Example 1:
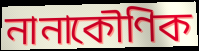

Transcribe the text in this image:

নানাকৌণিক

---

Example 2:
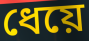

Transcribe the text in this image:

ধেয়ে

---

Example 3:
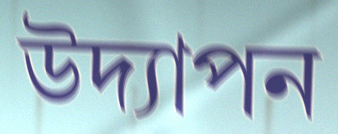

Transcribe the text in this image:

উদ্যাপন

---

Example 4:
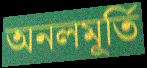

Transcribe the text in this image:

অনলমূর্তি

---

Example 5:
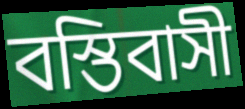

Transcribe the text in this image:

বস্তিবাসী